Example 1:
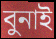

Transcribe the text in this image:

বুনাই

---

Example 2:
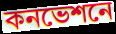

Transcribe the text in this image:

কনভেশনে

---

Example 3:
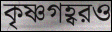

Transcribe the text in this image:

কৃষ্ণগহ্বরও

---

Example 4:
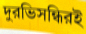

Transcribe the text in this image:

দুরভিসন্ধিরই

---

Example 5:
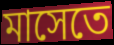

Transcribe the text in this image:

মাসেতে